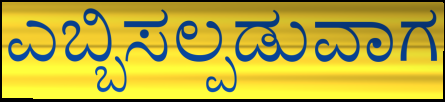
ಎಬ್ಬಿಸಲ್ಪಡುವಾಗ